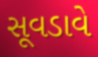
સૂવડાવે